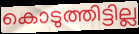
കൊടുത്തിട്ടില്ല